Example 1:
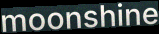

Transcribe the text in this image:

moonshine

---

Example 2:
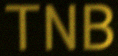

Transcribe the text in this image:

TNB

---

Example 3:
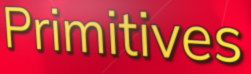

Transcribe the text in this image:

Primitives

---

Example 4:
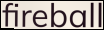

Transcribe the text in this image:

fireball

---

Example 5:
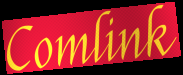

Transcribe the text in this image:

Comlink